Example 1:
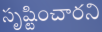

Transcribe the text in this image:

సృష్టించారని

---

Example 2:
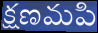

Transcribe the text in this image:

క్షణమపి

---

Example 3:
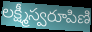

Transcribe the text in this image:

లక్ష్మీస్వరూపిణి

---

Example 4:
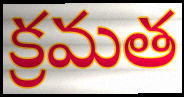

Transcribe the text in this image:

క్రమత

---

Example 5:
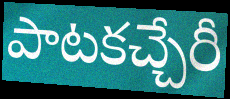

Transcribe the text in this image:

పాటకచ్చేరీ